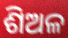
ଶିଅଳ